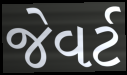
જેવર્ટ